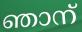
ഞാന്